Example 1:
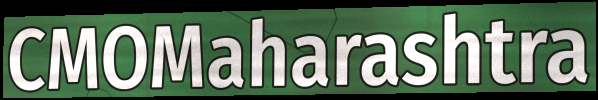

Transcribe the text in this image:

CMOMaharashtra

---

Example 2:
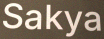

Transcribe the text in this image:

Sakya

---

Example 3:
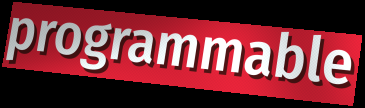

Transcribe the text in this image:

programmable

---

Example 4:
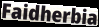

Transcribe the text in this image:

Faidherbia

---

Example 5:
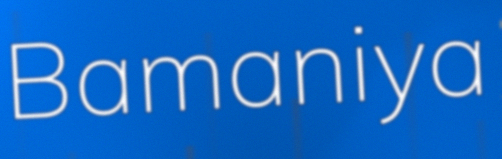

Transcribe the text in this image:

Bamaniya